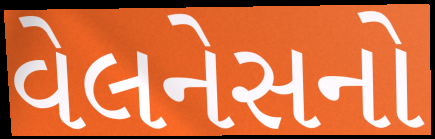
વેલનેસનો